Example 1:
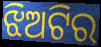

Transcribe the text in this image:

ଝିଅଟିର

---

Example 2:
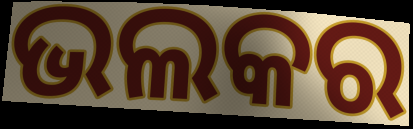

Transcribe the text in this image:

ଭଲକର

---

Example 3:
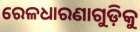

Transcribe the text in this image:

ରେଳଧାରଣାଗୁଡ଼ିକୁ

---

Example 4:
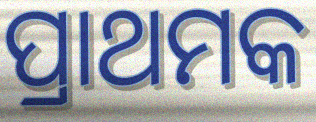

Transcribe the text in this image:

ପ୍ରାଥମକ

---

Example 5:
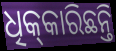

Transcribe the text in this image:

ଧିକ୍‌କାରିଛନ୍ତି